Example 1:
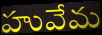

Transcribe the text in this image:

హువేమ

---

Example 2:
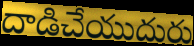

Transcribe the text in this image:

దాడిచేయుదురు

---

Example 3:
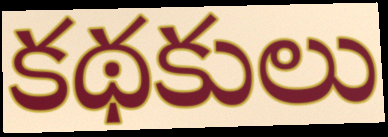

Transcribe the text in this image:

కథకులు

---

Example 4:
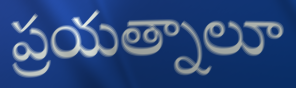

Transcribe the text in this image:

ప్రయత్నాలూ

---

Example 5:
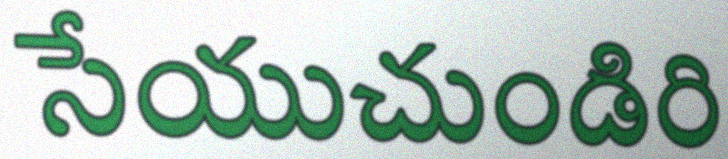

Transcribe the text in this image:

సేయుచుండిరి